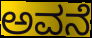
ಅವನೆ